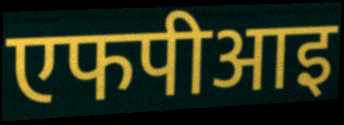
एफपीआइ